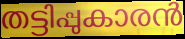
തട്ടിപ്പുകാരൻ